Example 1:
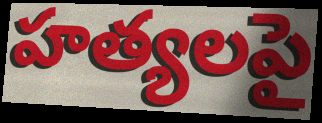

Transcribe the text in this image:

హత్యలపై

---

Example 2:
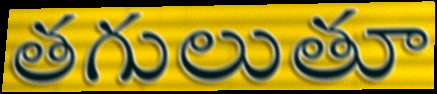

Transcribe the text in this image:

తగులుతూ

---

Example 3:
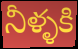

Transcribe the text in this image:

నీళ్ళకి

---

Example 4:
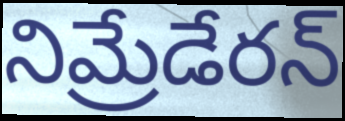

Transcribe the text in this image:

నిమ్రేడేరన్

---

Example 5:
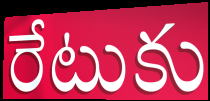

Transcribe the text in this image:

రేటుకు